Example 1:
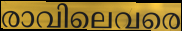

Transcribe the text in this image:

രാവിലെവരെ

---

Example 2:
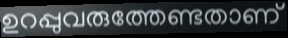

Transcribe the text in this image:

ഉറപ്പുവരുത്തേണ്ടതാണ്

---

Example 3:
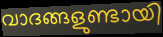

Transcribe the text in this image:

വാദങ്ങളുണ്ടായി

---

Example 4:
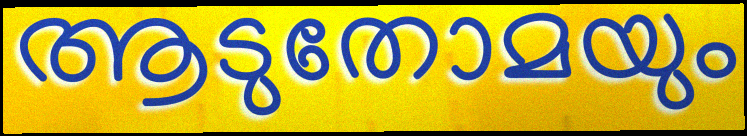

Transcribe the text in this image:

ആടുതോമയും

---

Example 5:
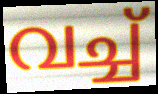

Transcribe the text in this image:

വച്ച്